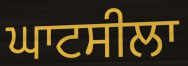
ਘਾਟਸੀਲਾ